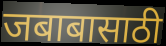
जबाबासाठी